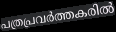
പത്രപ്രവർത്തകരിൽ